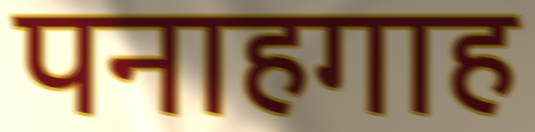
पनाहगाह